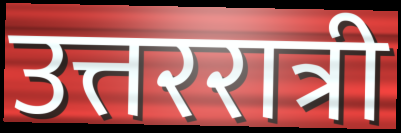
उत्तररात्री